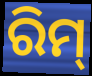
ରିମ୍